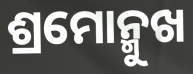
ଶ୍ରମୋନ୍ମୁଖ